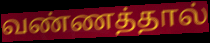
வண்ணத்தால்